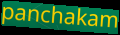
panchakam